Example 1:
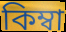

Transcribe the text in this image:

কিম্বা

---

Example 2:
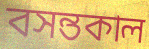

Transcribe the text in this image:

বসন্তকাল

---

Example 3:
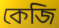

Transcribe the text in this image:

কেজি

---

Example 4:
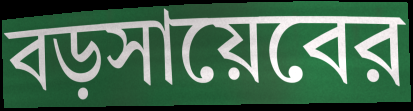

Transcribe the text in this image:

বড়সায়েবের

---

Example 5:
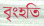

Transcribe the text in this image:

বৃংহতি